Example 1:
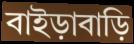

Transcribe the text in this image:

বাইড়াবাড়ি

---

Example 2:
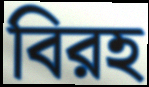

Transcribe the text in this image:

বিরহ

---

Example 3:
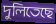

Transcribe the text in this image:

দুলিতেছে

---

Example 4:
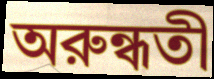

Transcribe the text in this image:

অরুন্ধতী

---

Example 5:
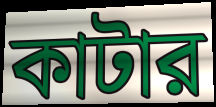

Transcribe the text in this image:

কাটার